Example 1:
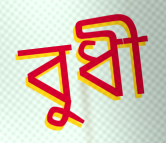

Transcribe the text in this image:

বুধী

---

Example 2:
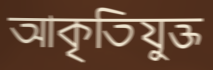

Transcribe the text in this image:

আকৃতিযুক্ত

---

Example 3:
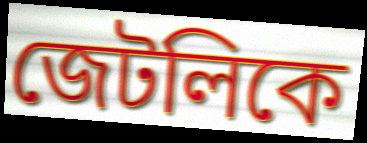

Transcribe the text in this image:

জেটলিকে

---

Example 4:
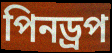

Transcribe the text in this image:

পিনড্রপ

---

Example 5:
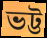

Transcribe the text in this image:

ভট্ট